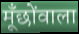
मूँछोंवाला